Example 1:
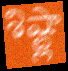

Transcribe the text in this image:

శిష్ట్లా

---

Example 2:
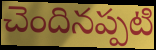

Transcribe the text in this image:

చెందినప్పటి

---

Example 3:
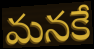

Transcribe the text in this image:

మనకే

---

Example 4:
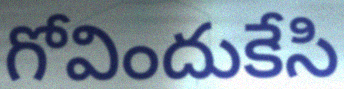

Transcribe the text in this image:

గోవిందుకేసి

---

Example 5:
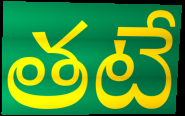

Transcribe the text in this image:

తటే